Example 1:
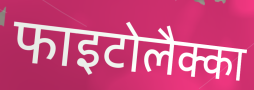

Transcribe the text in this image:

फाइटोलैक्का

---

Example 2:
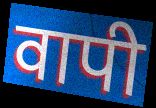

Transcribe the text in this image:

वापी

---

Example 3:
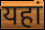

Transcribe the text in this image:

यहां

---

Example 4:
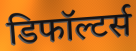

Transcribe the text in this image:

डिफॉल्टर्स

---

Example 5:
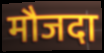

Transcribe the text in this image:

मौजदा